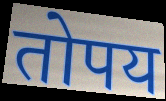
तोपय